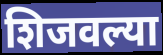
शिजवल्या